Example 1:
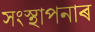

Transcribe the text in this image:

সংস্থাপনাৰ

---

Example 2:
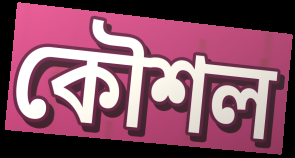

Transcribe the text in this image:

কৌশল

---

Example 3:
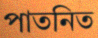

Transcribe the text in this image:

পাতনিত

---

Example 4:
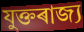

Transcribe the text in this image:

যুক্তৰাজ্য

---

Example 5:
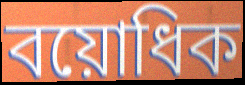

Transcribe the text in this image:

বয়োধিক